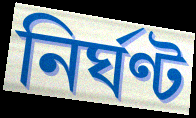
নির্ঘণ্ট